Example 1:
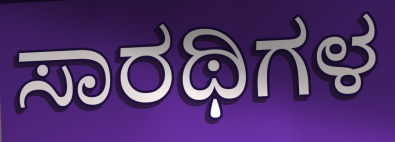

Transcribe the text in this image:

ಸಾರಥಿಗಳ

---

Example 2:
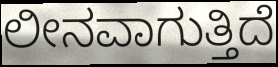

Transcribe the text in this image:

ಲೀನವಾಗುತ್ತಿದೆ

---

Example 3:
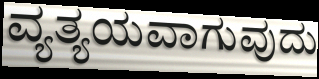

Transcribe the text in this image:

ವ್ಯತ್ಯಯವಾಗುವುದು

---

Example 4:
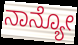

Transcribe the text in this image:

ನಾನ್ಯೋ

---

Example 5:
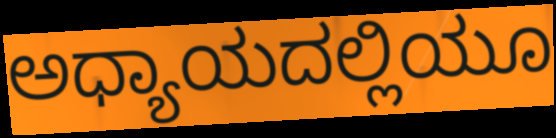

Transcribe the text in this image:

ಅಧ್ಯಾಯದಲ್ಲಿಯೂ